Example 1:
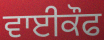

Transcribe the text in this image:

ਵਾਈਕੌਫ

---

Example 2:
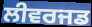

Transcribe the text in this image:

ਲੀਵਰਜਡ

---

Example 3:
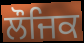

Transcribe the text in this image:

ਲੌਜਿਕ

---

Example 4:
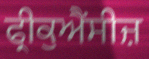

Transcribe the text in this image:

ਫ੍ਰੀਕੁਐਂਸੀਜ਼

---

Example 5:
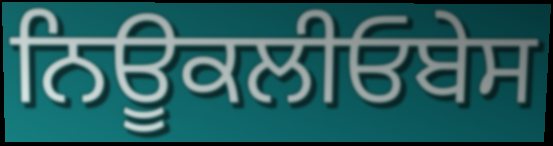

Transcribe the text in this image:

ਨਿਊਕਲੀਓਬੇਸ